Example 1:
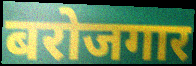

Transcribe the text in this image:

बरोजगार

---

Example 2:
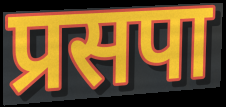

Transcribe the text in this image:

प्रसपा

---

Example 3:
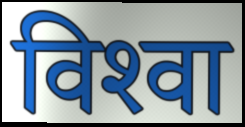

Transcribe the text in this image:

विश्‍वा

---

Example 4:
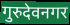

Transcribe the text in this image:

गुरुदेवनगर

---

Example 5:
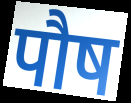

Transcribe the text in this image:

पौष